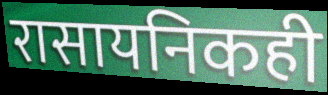
रासायनिकही